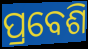
ପ୍ରବେଶି